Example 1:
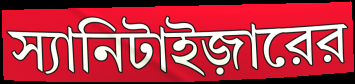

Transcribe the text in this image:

স্যানিটাইজ়ারের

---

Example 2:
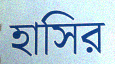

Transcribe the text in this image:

হাসির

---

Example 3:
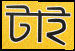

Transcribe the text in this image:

টাই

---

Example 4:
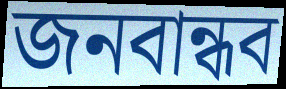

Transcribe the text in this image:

জনবান্ধব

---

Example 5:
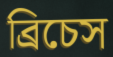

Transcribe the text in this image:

ব্রিচেস